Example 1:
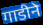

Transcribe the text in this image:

गाडीने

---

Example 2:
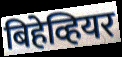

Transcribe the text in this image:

बिहेव्हियर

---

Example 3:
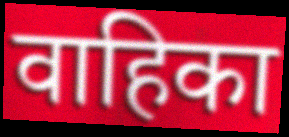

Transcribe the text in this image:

वाहिका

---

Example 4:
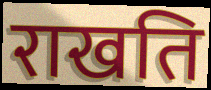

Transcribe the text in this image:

राखति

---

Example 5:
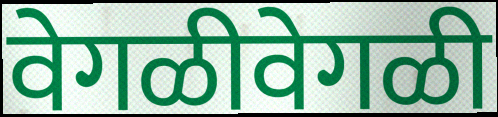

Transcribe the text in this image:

वेगळीवेगळी